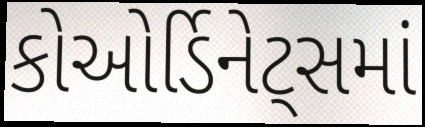
કોઓર્ડિનેટ્સમાં